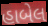
હાબેલ